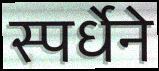
स्पर्धेने